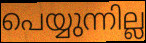
പെയ്യുന്നില്ല